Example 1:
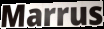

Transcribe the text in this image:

Marrus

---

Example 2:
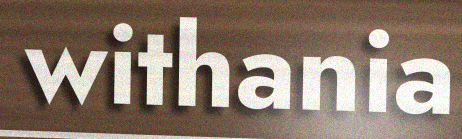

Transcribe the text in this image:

withania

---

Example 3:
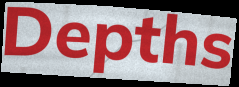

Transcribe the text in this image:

Depths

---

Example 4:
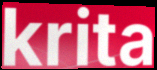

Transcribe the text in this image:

krita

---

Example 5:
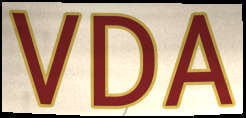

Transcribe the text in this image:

VDA